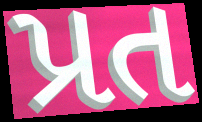
પ્રત